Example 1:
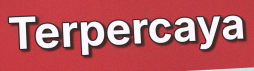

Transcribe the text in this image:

Terpercaya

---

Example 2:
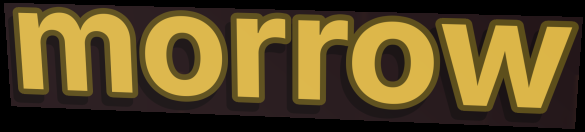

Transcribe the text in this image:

morrow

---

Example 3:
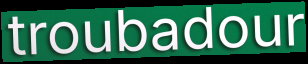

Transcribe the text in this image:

troubadour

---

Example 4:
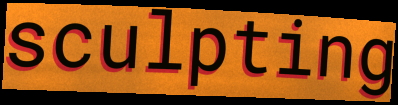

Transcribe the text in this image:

sculpting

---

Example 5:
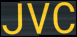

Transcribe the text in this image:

JVC